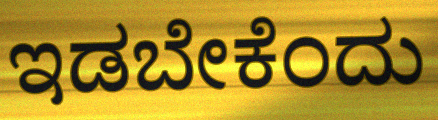
ಇಡಬೇಕೆಂದು